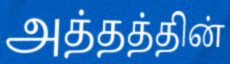
அத்தத்தின்